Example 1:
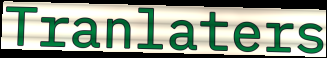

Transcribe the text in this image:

Tranlaters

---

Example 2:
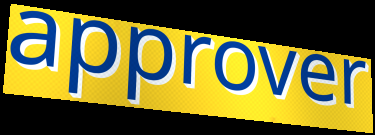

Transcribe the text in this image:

approver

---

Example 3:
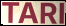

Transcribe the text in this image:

TARI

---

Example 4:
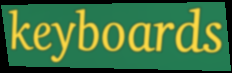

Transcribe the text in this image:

keyboards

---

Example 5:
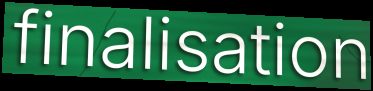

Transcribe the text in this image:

finalisation